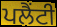
ਪਲੈਂਟੀ